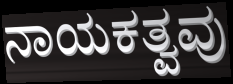
ನಾಯಕತ್ವವು